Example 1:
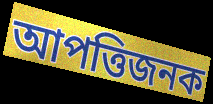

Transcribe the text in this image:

আপত্তিজনক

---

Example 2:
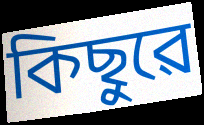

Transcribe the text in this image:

কিছুৱে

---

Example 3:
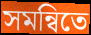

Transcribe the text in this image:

সমন্বিতে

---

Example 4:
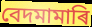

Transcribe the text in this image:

বেদমামাৰি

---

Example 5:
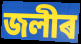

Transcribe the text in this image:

জলীৰ